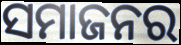
ସମାଜନର